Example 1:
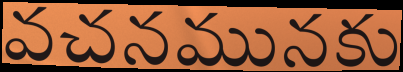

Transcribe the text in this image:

వచనమునకు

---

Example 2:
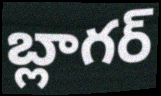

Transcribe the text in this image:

బ్లాగర్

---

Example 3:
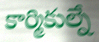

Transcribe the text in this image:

కార్మికుల్నే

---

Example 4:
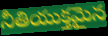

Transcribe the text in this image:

నీతియుక్తమైన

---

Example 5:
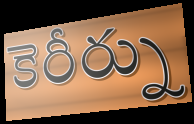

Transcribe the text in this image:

కెరీర్ను